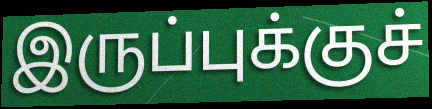
இருப்புக்குச்